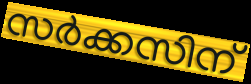
സർക്കസിന്